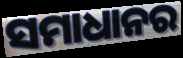
ସମାଧାନର